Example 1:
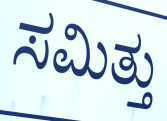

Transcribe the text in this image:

ಸಮಿತ್ತು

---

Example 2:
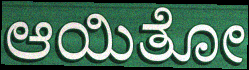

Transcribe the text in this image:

ಆಯಿತೋ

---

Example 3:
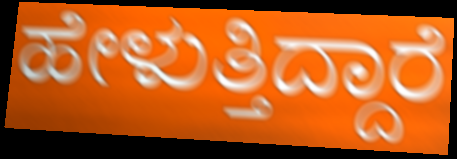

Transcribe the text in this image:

ಹೇಳುತ್ತಿದ್ದಾರೆ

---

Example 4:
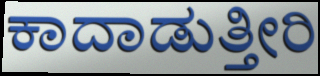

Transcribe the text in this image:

ಕಾದಾಡುತ್ತೀರಿ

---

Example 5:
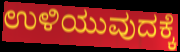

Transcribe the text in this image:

ಉಳಿಯುವುದಕ್ಕೆ